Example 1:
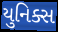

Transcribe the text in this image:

યુનિક્સ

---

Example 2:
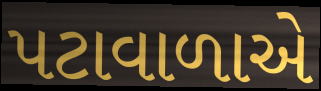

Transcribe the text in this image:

પટાવાળાએ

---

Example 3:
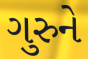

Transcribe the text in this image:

ગુરુને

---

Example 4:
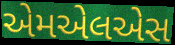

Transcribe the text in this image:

એમએલએસ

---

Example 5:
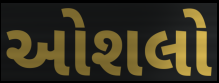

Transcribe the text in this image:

ઓશલો